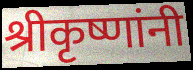
श्रीकृष्णांनी